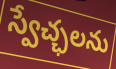
స్వేచ్ఛలను